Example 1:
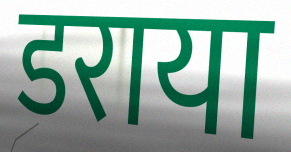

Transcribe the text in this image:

डराया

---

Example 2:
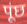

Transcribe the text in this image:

पूंछ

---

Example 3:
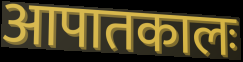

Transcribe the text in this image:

आपातकालः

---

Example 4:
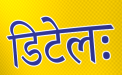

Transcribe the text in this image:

डिटेलः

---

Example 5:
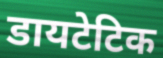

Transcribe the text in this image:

डायटेटिक